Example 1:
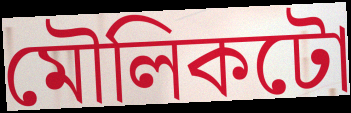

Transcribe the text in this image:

মৌলিকটো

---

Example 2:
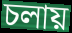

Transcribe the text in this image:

চলায়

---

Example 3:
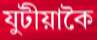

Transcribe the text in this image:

যুটীয়াকৈ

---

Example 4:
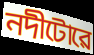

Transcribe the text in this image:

নদীটোৱে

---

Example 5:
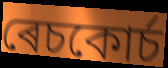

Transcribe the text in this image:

ৰেচকোৰ্চ